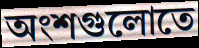
অংশগুলোতে